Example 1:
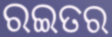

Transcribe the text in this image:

ରଇତର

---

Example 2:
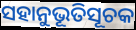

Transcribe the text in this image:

ସହାନୁଭୂତିସୂଚକ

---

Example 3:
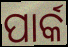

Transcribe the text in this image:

ପାର୍କ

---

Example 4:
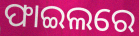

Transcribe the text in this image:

ଫାଇଲରେ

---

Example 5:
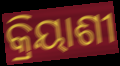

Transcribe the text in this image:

କ୍ରିୟାଶୀ